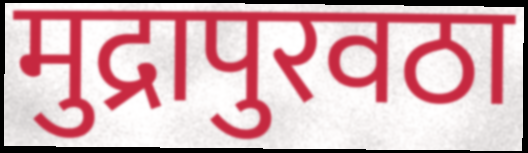
मुद्रापुरवठा